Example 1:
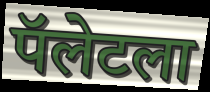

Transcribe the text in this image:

पॅलेटला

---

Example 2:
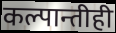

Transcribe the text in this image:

कल्पान्तीही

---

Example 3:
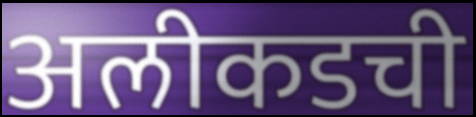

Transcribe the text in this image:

अलीकडची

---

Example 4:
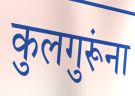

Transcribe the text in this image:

कुलगुरूंना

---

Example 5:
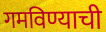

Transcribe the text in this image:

गमविण्याची